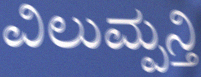
ವಿಲುಮ್ಪನ್ತಿ